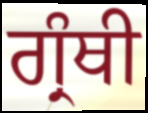
ਗ੍ਰੰਥੀ